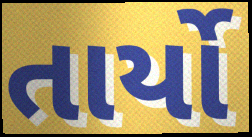
તાર્યો